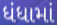
ધંધામાં